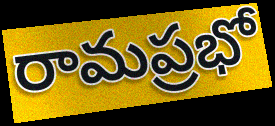
రామప్రభో